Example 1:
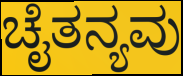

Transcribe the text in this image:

ಚೈತನ್ಯವು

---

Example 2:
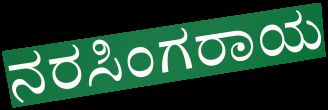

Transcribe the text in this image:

ನರಸಿಂಗರಾಯ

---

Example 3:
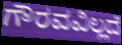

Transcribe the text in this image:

ಗೌರವವಿಲ್ಲದೆ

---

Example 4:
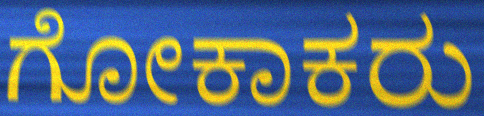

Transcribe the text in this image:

ಗೋಕಾಕರು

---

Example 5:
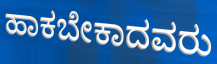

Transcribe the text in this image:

ಹಾಕಬೇಕಾದವರು